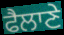
ਫੈਲਾਣੇ